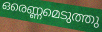
ഒരെണ്ണമെടുത്തു